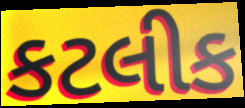
કટલીક